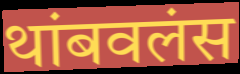
थांबवलंस